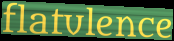
flatulence